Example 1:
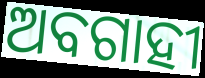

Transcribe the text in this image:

ଅବଗାହୀ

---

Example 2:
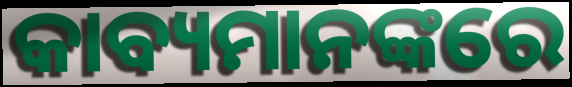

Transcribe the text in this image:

କାବ୍ୟମାନଙ୍କରେ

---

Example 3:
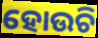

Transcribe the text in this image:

ହୋଉଚି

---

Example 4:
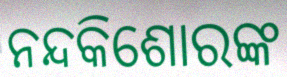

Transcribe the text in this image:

ନନ୍ଦକିଶୋରଙ୍କ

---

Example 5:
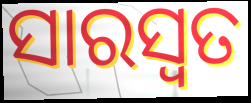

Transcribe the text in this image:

ସାରସ୍ବତ